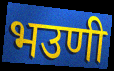
भउणी